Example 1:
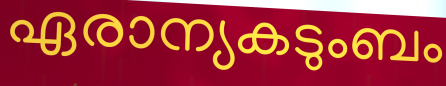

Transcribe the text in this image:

ഏരാന്യകടുംബം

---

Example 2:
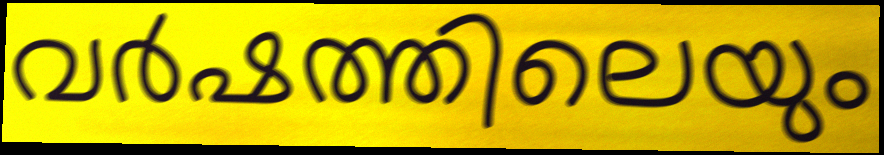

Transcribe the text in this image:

വർഷത്തിലെയും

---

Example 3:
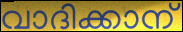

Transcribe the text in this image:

വാദിക്കാന്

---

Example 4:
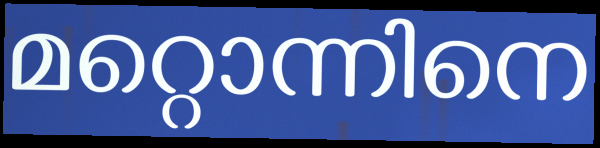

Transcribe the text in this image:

മറ്റൊന്നിനെ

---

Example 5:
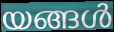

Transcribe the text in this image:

യങ്ങൾ